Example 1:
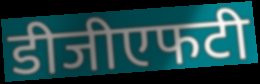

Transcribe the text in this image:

डीजीएफटी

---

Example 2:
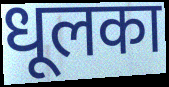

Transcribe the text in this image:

धूलका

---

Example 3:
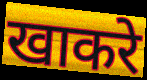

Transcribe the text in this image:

खाकरे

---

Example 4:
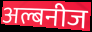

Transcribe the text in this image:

अल्‍बनीज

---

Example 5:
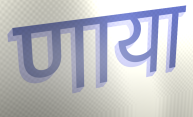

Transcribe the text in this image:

णाया